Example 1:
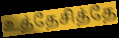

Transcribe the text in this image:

உத்தேசித்தே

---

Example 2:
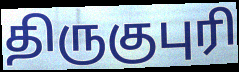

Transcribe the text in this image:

திருகுபுரி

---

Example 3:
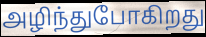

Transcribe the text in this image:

அழிந்துபோகிறது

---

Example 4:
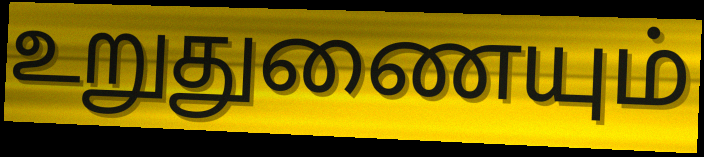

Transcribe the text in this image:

உறுதுணையும்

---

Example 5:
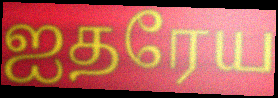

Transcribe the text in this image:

ஐதரேய